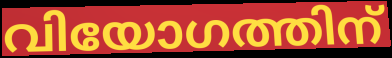
വിയോഗത്തിന്